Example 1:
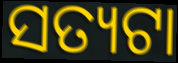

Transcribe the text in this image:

ସତ୍ୟଟା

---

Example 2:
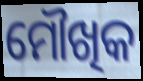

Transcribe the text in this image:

ମୌଖିକ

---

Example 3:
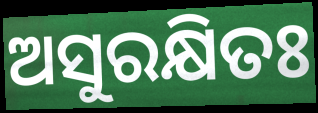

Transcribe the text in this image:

ଅସୁରକ୍ଷିତଃ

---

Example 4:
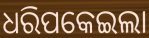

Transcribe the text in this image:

ଧରିପକେଇଲା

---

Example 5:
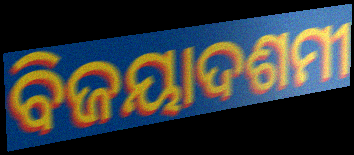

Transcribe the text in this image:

ବିଜୟାଦଶମୀ